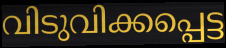
വിടുവിക്കപ്പെട്ട